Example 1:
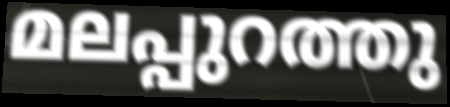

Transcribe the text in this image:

മലപ്പുറത്തു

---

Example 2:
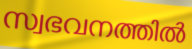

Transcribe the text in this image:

സ്വഭവനത്തിൽ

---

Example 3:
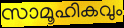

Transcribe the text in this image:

സാമൂഹികവും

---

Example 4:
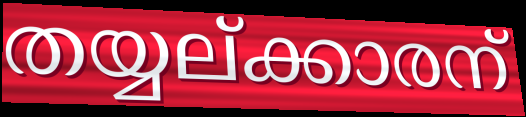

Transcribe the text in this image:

തയ്യല്ക്കാരന്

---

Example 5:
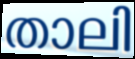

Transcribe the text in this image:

താലി